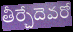
తీర్చేదెవరో